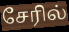
சேரில்